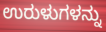
ಉರುಳುಗಳನ್ನು